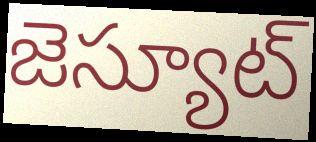
జెస్యూట్